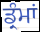
ਡ੍ਰੰਮਾਂ